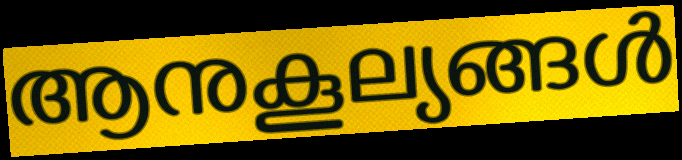
ആനുകൂല്യങ്ങൾ